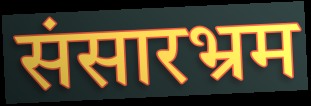
संसारभ्रम